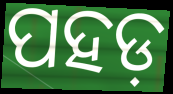
ପହଡ଼